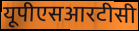
यूपीएसआरटीसी